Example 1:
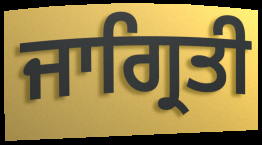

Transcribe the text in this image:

ਜਾਗ੍ਰਿਤੀ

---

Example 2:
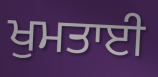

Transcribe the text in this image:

ਖੁਮਤਾਈ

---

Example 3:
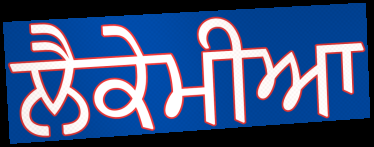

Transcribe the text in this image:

ਲੈਕੇਮੀਆ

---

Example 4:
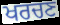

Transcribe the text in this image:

ਖਰਚਣ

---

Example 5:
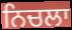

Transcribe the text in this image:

ਨਿਚਲਾ